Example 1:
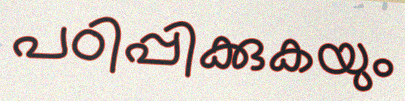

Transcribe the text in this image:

പഠിപ്പിക്കുകയും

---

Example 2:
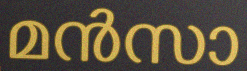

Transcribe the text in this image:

മൻസാ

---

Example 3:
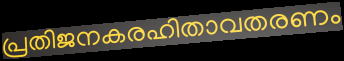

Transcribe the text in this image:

പ്രതിജനകരഹിതാവതരണം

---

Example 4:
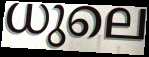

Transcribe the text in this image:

ധുലെ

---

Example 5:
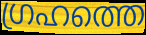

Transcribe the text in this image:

ഗ്രഹത്തെ